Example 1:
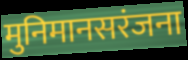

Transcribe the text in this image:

मुनिमानसरंजना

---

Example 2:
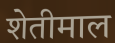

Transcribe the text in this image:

शेतीमाल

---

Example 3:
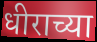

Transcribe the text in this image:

धीराच्या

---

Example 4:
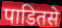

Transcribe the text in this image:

पाडितसे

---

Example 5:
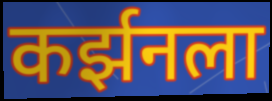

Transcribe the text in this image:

कर्झनला